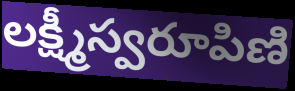
లక్ష్మీస్వరూపిణి